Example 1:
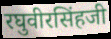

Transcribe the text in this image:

रघुवीरसिंहजी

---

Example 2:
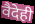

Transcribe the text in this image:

वैदेही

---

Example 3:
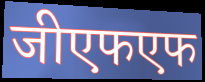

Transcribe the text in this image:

जीएफएफ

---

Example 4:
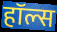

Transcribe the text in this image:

हॉल्स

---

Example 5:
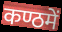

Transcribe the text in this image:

कण्ठमें